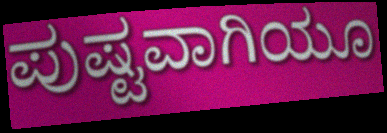
ಪುಷ್ಟವಾಗಿಯೂ